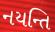
નયન્તિ